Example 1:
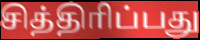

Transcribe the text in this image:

சித்திரிப்பது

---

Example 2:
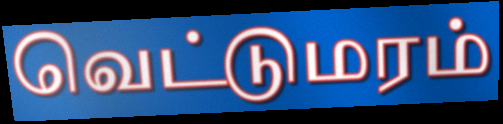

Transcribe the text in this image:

வெட்டுமரம்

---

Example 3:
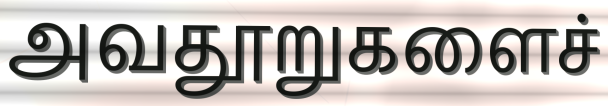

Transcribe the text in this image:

அவதூறுகளைச்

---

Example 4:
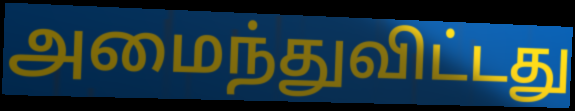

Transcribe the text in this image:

அமைந்துவிட்டது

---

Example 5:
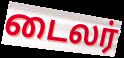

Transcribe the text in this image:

டைலர்